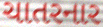
ચાતરનાર